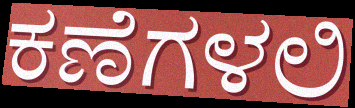
ಕಣೆಗಳಲಿ